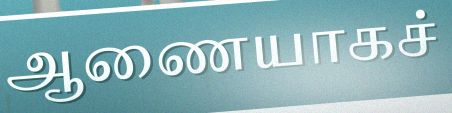
ஆணையாகச்